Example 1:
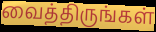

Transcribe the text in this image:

வைத்திருங்கள்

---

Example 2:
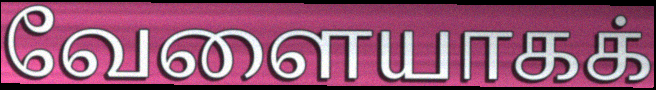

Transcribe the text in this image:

வேளையாகக்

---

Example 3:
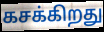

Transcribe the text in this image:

கசக்கிறது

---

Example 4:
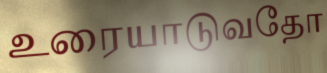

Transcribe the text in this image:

உரையாடுவதோ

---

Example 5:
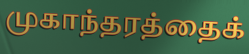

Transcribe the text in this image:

முகாந்தரத்தைக்